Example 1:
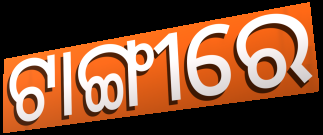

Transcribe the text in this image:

ଟାଙ୍ଗୀରେ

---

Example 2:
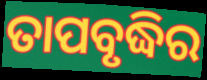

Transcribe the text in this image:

ତାପବୃଦ୍ଧିର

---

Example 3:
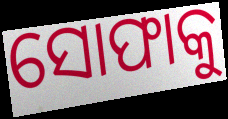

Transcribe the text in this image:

ସୋଫାକୁ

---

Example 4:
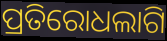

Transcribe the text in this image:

ପ୍ରତିରୋଧଲାଗି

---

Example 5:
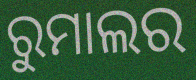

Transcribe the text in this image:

ରୁମାଲର